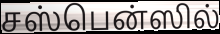
சஸ்பென்ஸில்